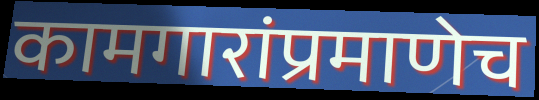
कामगारांप्रमाणेच